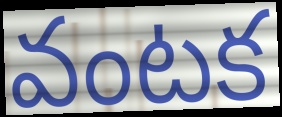
వంటక